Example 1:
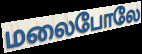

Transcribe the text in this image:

மலைபோலே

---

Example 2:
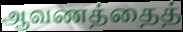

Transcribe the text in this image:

ஆவணத்தைத்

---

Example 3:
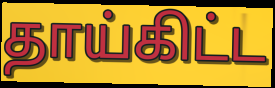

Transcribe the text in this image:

தாய்கிட்ட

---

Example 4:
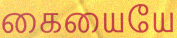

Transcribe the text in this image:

கையையே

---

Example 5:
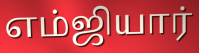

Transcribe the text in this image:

எம்ஜியார்